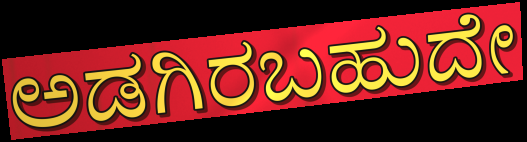
ಅಡಗಿರಬಹುದೇ